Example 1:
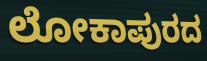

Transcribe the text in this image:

ಲೋಕಾಪುರದ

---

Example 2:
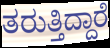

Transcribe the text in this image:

ತರುತ್ತಿದ್ದಾರೆ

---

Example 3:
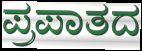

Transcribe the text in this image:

ಪ್ರಪಾತದ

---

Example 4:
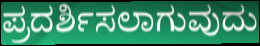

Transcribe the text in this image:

ಪ್ರದರ್ಶಿಸಲಾಗುವುದು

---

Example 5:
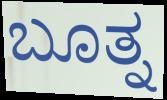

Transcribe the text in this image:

ಬೂತ್ನ